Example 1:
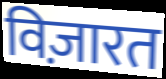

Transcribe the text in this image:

विज़ारत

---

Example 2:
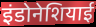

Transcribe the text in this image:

इंडोनेशियाई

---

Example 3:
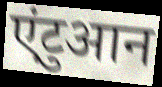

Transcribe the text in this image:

एंटुआन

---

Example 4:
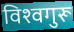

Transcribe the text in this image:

विश्वगुरू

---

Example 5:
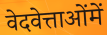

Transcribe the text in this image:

वेदवेत्ताओंमें